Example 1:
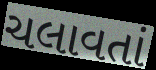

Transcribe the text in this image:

ચલાવતાં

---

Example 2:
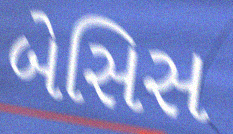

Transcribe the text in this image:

બેસિસ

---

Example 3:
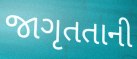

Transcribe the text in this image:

જાગૃતતાની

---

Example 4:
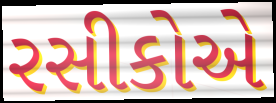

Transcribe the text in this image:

રસીકોએ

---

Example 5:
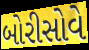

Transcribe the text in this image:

બોરીસોવે